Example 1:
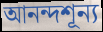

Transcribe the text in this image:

আনন্দশূন্য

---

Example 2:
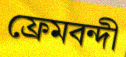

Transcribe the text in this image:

ফ্রেমবন্দী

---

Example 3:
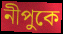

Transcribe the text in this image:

নীপুকে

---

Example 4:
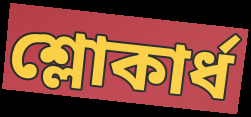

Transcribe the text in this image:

শ্লোকার্ধ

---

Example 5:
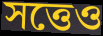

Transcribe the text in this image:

সত্তেও